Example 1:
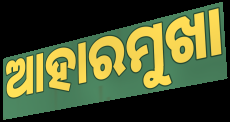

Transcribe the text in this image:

ଆହାରମୁଖା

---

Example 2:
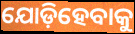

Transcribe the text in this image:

ଯୋଡ଼ିହେବାକୁ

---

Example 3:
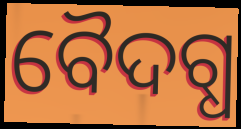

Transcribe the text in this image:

ବୈଦଗ୍ଧ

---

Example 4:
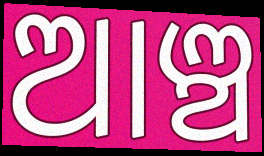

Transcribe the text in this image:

ଆଞ୍ଚ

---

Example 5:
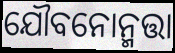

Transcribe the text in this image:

ଯୌବନୋନ୍ମତ୍ତା